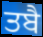
ਤਬੈ